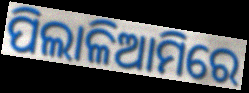
ପିଲାଳିଆମିରେ